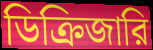
ডিক্রিজারি